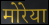
मोरेया